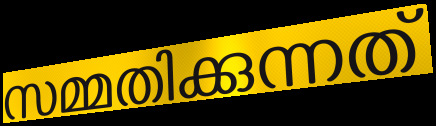
സമ്മതിക്കുന്നത്